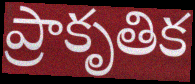
ప్రాకృతిక